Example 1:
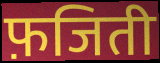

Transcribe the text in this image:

फ़जिती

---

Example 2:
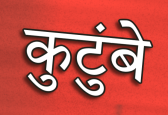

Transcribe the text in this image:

कुटुंबे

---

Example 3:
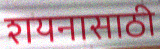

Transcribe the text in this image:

शयनासाठी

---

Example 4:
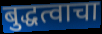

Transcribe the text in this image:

बुद्धत्वाचा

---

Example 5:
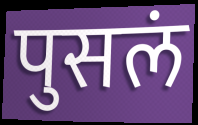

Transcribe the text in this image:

पुसलं